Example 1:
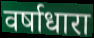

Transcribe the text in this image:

वर्षाधारा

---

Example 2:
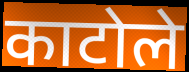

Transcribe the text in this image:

काटोले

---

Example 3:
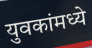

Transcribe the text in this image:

युवकांमध्ये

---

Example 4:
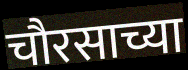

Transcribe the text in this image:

चौरसाच्या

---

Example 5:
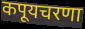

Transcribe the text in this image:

कपूयचरणा